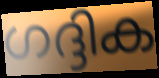
ഗദ്ദിക